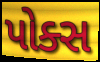
પોક્સ